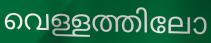
വെള്ളത്തിലോ